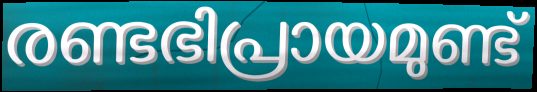
രണ്ടഭിപ്രായമുണ്ട്